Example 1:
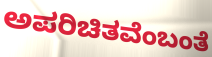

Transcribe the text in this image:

ಅಪರಿಚಿತವೆಂಬಂತೆ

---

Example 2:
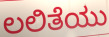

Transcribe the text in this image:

ಲಲಿತೆಯು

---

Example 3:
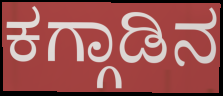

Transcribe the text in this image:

ಕಗ್ಗಾಡಿನ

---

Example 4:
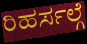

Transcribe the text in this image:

ರಿಹರ್ಸಲ್ಗೆ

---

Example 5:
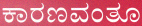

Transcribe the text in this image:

ಕಾರಣವಂತೂ